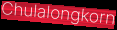
Chulalongkorn